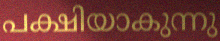
പക്ഷിയാകുന്നു